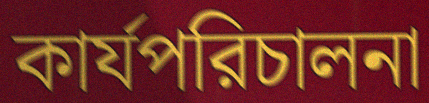
কার্যপরিচালনা